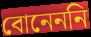
বোনেননি